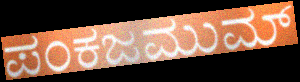
ಪಂಕಜಮುಮ್